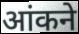
आंकने